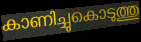
കാണിച്ചുകൊടുത്തു